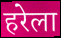
हरेला